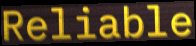
Reliable